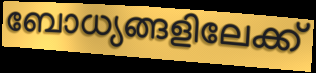
ബോധ്യങ്ങളിലേക്ക്